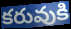
కరువుకి